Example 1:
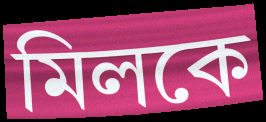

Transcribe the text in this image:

মিলকে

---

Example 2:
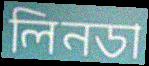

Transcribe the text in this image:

লিনডা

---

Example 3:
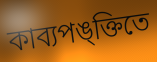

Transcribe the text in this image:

কাব্যপঙ্ক্তিতে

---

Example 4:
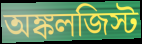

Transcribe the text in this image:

অঙ্কলজিস্ট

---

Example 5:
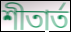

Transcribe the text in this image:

শীতার্ত